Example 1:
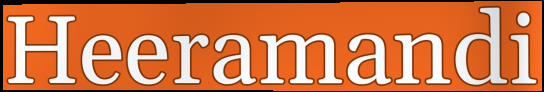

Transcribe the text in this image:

Heeramandi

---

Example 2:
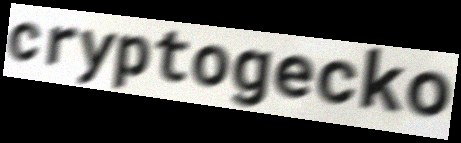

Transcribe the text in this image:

cryptogecko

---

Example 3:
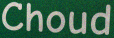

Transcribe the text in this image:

Choud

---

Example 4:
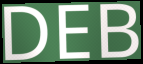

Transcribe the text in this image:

DEB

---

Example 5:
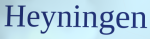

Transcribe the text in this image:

Heyningen